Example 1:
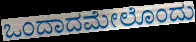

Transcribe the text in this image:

ಒಂದಾದಮೇಲೊಂದು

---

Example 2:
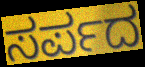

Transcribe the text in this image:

ಸರ್ಪದ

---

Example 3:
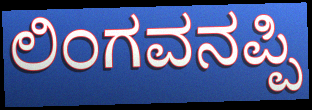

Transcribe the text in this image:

ಲಿಂಗವನಪ್ಪಿ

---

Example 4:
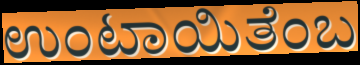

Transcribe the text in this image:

ಉಂಟಾಯಿತೆಂಬ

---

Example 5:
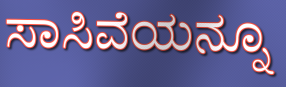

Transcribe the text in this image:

ಸಾಸಿವೆಯನ್ನೂ